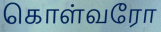
கொள்வரோ